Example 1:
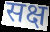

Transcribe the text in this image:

सक्ष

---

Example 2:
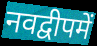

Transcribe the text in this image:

नवद्वीपमें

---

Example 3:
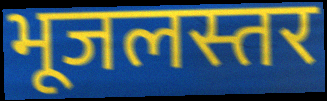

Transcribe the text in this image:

भूजलस्तर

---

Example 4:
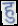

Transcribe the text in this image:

हु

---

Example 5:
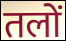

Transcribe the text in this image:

तलों